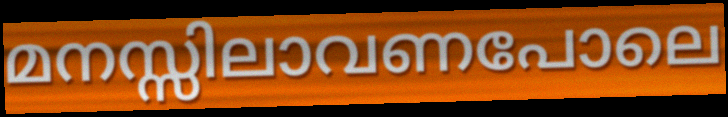
മനസ്സിലാവണപോലെ